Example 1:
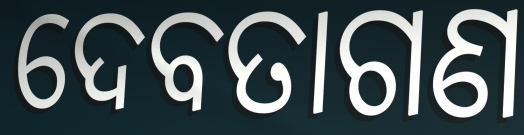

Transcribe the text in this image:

ଦେବତାଗଣ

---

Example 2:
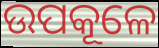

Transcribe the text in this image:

ଉପକୂଳେ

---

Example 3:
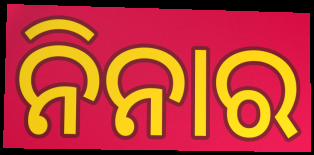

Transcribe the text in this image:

ନିନାର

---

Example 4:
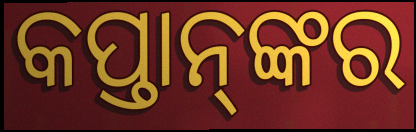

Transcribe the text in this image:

କପ୍ତାନ୍‌ଙ୍କର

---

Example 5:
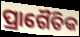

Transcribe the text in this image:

ପ୍ରାଗୈତିକ